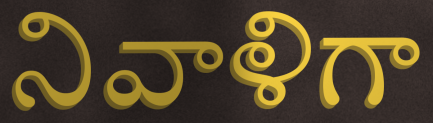
నివాళిగా